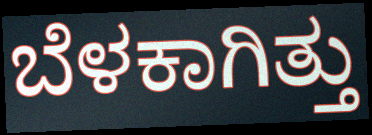
ಬೆಳಕಾಗಿತ್ತು